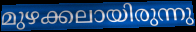
മുഴക്കലായിരുന്നു